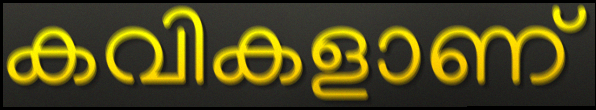
കവികളാണ്